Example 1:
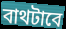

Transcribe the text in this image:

বাথটাবে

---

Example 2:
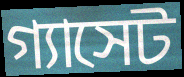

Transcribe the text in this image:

গ্যাসেট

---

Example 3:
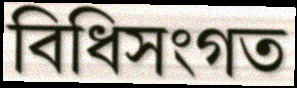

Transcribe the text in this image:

বিধিসংগত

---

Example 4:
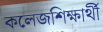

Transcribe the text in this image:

কলেজশিক্ষার্থী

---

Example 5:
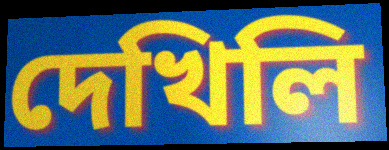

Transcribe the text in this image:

দেখিলি